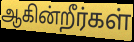
ஆகின்றீர்கள்